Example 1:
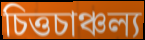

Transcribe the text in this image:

চিত্তচাঞ্চল্য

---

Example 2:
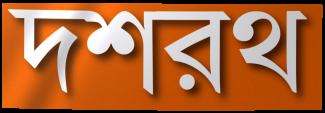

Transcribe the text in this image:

দশরথ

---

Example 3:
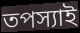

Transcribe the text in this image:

তপস্যাই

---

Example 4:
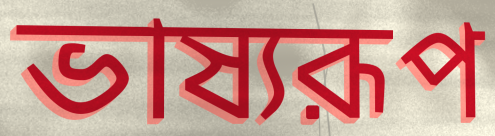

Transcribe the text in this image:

ভাষ্যরূপ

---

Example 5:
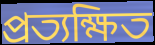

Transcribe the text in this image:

প্রত্যক্ষিত